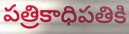
పత్రికాధిపతికి